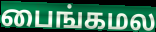
பைங்கமல